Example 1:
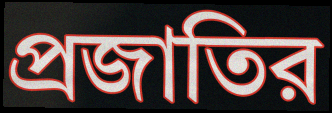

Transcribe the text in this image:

প্রজাতির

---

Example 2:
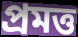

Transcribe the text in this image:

প্রমত্ত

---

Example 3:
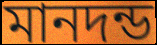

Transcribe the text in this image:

মানদন্ড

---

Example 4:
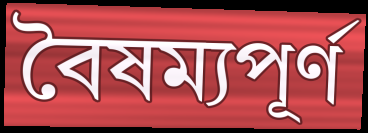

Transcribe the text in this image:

বৈষম্যপূর্ণ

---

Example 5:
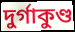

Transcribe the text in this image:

দুর্গাকুণ্ড